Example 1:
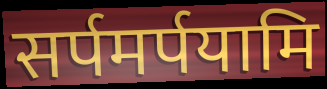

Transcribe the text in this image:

सर्पमर्पयामि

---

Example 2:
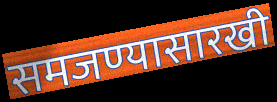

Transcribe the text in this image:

समजण्यासारखी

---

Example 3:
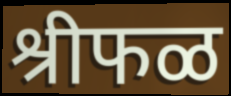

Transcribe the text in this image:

श्रीफळ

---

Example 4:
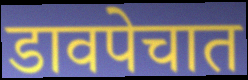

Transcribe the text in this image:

डावपेचात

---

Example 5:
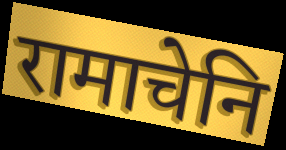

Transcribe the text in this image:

रामाचेनि